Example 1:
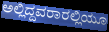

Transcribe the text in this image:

ಅಲ್ಲಿದ್ದವರಾರಲ್ಲಿಯೂ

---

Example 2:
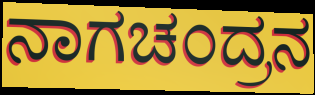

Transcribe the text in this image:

ನಾಗಚಂದ್ರನ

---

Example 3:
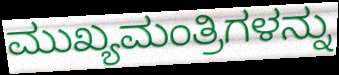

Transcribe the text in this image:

ಮುಖ್ಯಮಂತ್ರಿಗಳನ್ನು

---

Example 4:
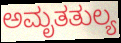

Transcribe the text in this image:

ಅಮೃತತುಲ್ಯ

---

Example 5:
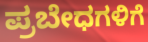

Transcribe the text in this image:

ಪ್ರಬೇಧಗಳಿಗೆ